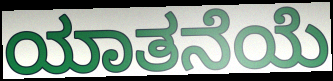
ಯಾತನೆಯೆ